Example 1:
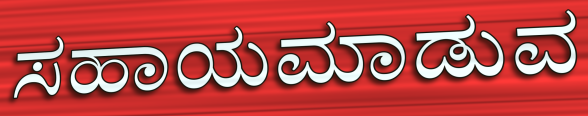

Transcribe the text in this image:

ಸಹಾಯಮಾಡುವ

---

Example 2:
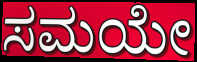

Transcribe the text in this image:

ಸಮಯೇ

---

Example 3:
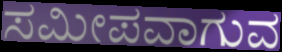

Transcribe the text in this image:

ಸಮೀಪವಾಗುವ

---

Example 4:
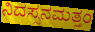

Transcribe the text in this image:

ನಿದಸ್ಸನಮತ್ತಂ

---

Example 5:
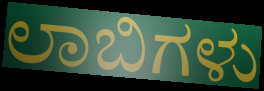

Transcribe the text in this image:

ಲಾಬಿಗಳು